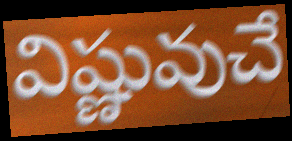
విష్ణువుచే